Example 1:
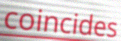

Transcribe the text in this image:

coincides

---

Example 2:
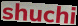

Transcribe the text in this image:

shuchi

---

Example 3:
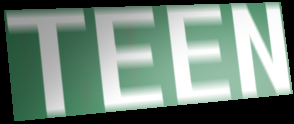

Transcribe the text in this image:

TEEN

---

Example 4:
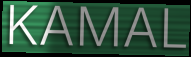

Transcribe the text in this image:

KAMAL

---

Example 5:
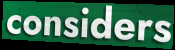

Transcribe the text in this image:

considers